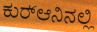
ಕುರ್‍ಆನಿನಲ್ಲಿ